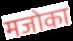
मजोका